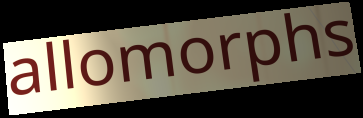
allomorphs